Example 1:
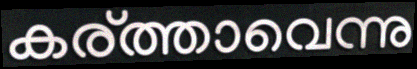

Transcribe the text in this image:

കര്ത്താവെന്നു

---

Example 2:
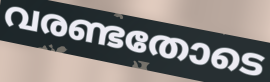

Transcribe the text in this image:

വരണ്ടതോടെ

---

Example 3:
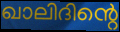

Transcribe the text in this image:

ഖാലിദിന്റെ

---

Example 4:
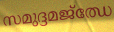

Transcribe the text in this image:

സമുദ്ദമജ്ഝേ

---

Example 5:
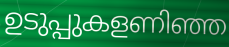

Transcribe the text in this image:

ഉടുപ്പുകളണിഞ്ഞ